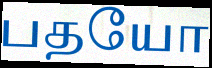
பதயோ